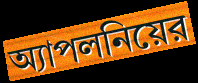
অ্যাপলনিয়ের